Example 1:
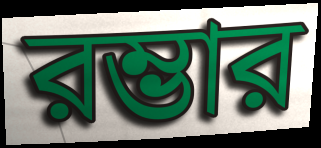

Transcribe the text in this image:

রম্ভার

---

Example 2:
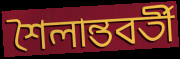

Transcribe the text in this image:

শৈলান্তবর্তী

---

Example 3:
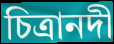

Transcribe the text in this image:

চিত্রানদী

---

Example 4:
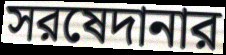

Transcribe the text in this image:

সরষেদানার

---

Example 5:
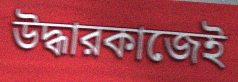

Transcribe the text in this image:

উদ্ধারকাজেই